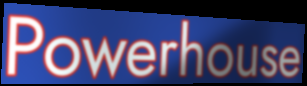
Powerhouse